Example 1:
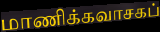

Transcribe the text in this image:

மாணிக்கவாசகப்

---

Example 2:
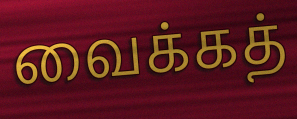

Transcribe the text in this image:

வைக்கத்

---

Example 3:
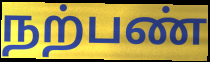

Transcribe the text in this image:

நற்பண்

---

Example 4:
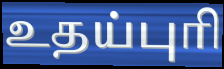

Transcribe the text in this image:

உதய்புரி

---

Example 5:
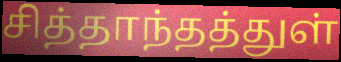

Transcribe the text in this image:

சித்தாந்தத்துள்